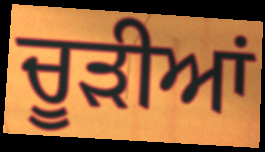
ਚੂੜੀਆਂ